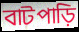
বাটপাড়ি